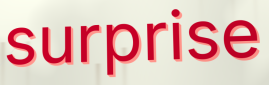
surprise